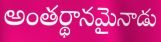
అంతర్థానమైనాడు